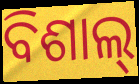
ବିଶାଲ୍